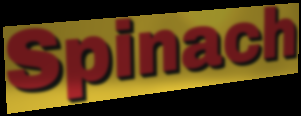
Spinach